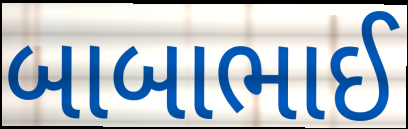
બાબાભાઈ